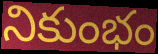
నికుంభం